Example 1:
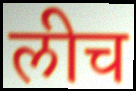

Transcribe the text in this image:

लीच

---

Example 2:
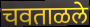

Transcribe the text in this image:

चवताळले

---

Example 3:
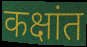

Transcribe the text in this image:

कक्षांत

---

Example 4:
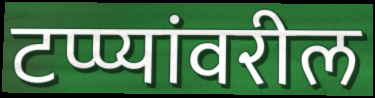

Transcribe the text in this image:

टप्प्यांवरील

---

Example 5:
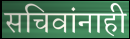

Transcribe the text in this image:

सचिवांनाही